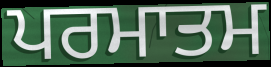
ਪਰਮਾਤਮ